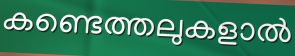
കണ്ടെത്തലുകളാൽ